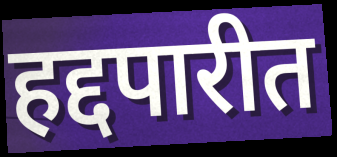
हद्दपारीत